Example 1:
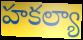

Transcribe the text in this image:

హకల్యా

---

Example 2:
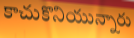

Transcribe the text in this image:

కాచుకొనియున్నారు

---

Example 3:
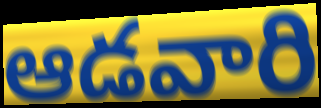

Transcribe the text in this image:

ఆడవారి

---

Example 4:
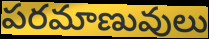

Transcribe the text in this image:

పరమాణువులు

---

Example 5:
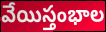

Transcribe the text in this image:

వేయిస్తంభాల